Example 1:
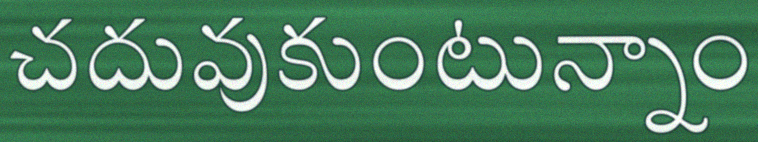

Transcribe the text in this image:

చదువుకుంటున్నాం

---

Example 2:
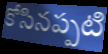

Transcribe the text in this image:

కోసినప్పటి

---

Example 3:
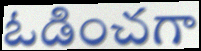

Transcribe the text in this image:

ఓడించగా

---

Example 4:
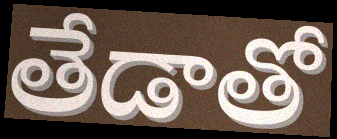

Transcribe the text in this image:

తేడాతో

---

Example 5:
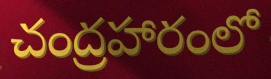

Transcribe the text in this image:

చంద్రహారంలో